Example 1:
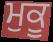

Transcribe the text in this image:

ਮੁਕੂ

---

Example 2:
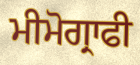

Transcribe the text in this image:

ਮੀਮੋਗ੍ਰਾਫੀ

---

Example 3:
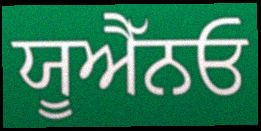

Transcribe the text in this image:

ਯੂਐੱਨਓ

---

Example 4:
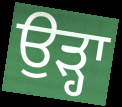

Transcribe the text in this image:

ਉੜ੍ਹਾ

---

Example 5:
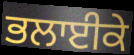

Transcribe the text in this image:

ਭਲਾਈਕੇ